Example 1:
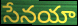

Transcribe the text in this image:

సేనయా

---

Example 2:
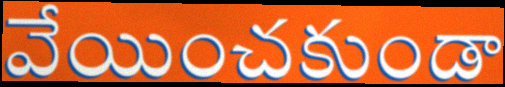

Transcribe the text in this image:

వేయించకుండా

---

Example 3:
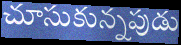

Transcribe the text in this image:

చూసుకున్నపుడు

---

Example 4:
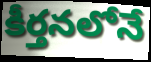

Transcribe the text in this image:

కీర్తనలోనే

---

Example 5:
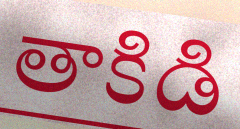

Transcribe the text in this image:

తాకిడి